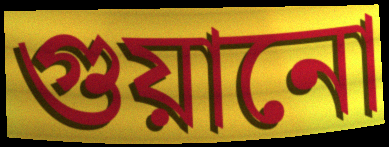
গুয়ানো